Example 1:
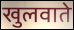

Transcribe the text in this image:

खुलवाते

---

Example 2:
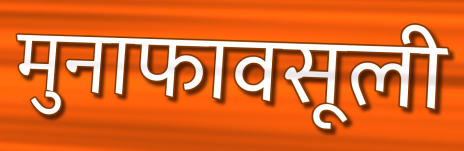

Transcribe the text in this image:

मुनाफावसूली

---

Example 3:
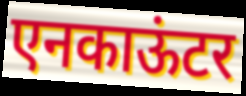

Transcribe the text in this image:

एनकाऊंटर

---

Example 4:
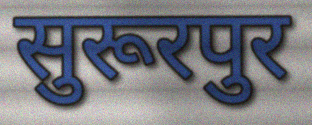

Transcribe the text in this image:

सुरूरपुर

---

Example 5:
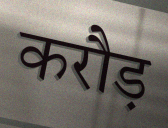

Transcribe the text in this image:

करौड़